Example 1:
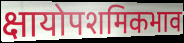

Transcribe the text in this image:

क्षायोपशमिकभाव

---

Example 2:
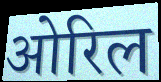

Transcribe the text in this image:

ओरिल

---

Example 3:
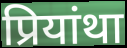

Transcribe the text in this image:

प्रियांथा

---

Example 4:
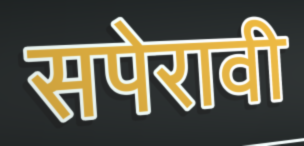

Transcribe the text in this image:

सपेरावी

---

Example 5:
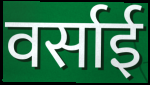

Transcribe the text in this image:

वर्साई